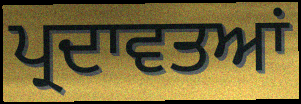
ਪ੍ਰਦਾਵਤਆਂ